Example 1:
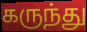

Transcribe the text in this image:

கருந்து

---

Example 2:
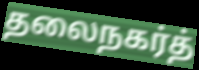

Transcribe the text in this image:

தலைநகர்த்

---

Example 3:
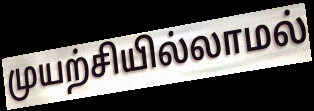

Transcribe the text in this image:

முயற்சியில்லாமல்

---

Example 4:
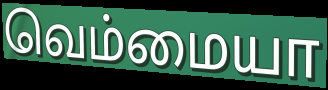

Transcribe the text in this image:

வெம்மையா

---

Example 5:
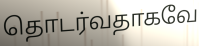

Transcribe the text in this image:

தொடர்வதாகவே